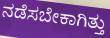
ನಡೆಸಬೇಕಾಗಿತ್ತು